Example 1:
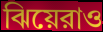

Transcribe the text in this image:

ঝিয়েরাও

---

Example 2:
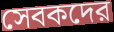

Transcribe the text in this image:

সেবকদের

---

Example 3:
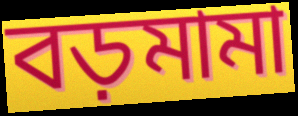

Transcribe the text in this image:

বড়মামা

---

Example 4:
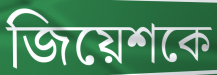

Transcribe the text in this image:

জিয়েশকে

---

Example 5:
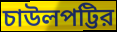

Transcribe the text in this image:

চাউলপট্টির